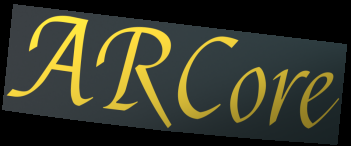
ARCore